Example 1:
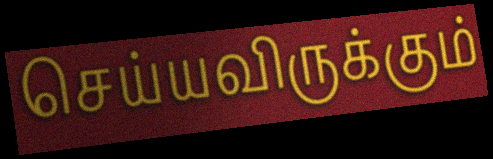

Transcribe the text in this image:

செய்யவிருக்கும்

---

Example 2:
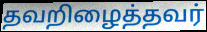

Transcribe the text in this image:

தவறிழைத்தவர்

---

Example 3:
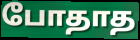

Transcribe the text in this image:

போதாத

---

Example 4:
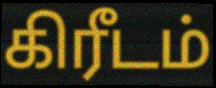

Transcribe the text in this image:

கிரீடம்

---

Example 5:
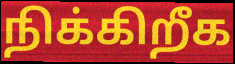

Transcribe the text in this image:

நிக்கிறீக